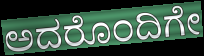
ಅದರೊಂದಿಗೇ